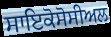
ਸਾਇਕੋਸੋਸੀਅਲ